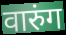
वारुंग